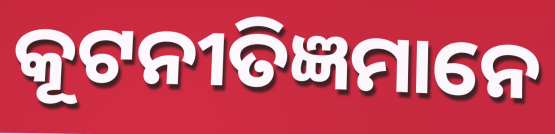
କୂଟନୀତିଜ୍ଞମାନେ